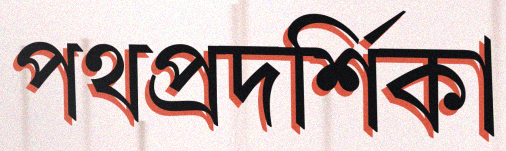
পথপ্রদর্শিকা